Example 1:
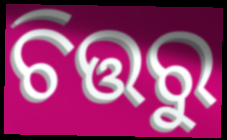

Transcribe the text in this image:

ଚିତ୍ତରୁ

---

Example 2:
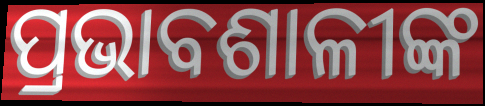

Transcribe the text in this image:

ପ୍ରଭାବଶାଳୀଙ୍କ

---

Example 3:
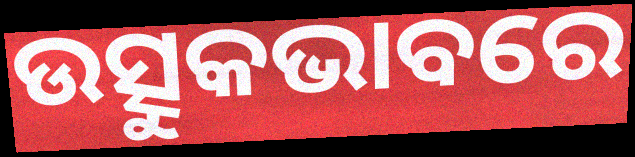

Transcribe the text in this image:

ଉତ୍ସୁକଭାବରେ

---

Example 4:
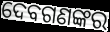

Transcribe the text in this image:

ଦେବଗଣଙ୍କର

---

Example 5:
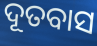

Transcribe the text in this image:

ଦୂତବାସ